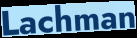
Lachman